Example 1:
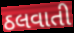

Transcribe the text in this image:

ઠલવાતી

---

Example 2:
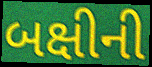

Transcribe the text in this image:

બક્ષીની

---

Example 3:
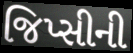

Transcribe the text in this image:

જિપ્સીની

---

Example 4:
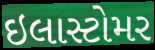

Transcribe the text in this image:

ઇલાસ્ટોમર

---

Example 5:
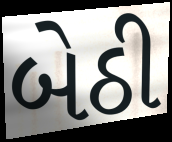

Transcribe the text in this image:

બેઠી